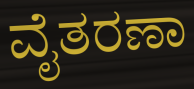
ವೈತರಣಾ